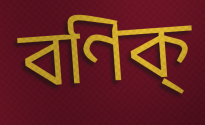
বণিক্